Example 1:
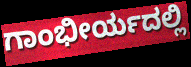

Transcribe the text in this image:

ಗಾಂಭೀರ್ಯದಲ್ಲಿ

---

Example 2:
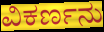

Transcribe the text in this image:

ವಿಕರ್ಣನು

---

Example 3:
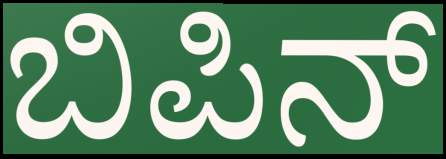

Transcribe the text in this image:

ಬಿಪಿನ್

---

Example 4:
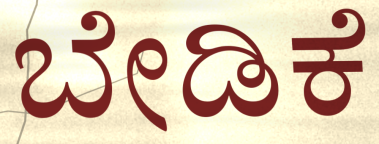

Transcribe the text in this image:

ಬೇಡಿಕೆ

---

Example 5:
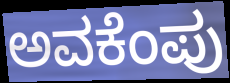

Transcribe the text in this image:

ಅವಕೆಂಪು